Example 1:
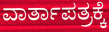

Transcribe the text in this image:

ವಾರ್ತಾಪತ್ರಕ್ಕೆ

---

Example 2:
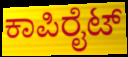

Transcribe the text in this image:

ಕಾಪಿರೈಟ್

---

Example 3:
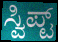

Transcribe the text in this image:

ಸ್ವಿಪ್ಟ್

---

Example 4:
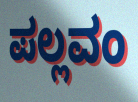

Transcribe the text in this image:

ಪಲ್ಲವಂ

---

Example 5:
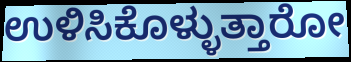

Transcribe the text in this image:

ಉಳಿಸಿಕೊಳ್ಳುತ್ತಾರೋ